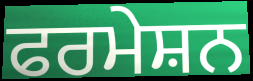
ਫਰਮੇਸ਼ਨ